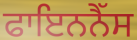
ਫਾਇਨਨੈੱਸ